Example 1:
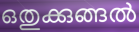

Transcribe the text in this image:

ഒതുക്കുങ്ങൽ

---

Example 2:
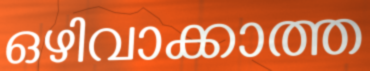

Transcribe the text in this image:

ഒഴിവാക്കാത്ത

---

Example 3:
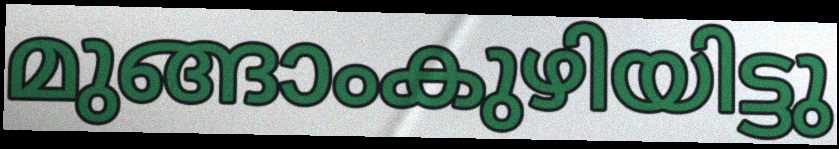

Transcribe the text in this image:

മുങ്ങാംകുഴിയിട്ടു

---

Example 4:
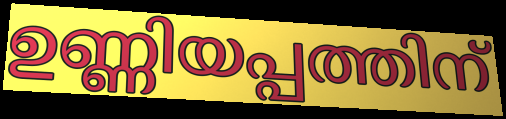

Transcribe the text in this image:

ഉണ്ണിയപ്പത്തിന്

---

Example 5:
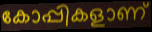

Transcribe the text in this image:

കോപ്പികളാണ്